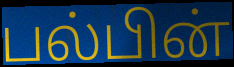
பல்பின்